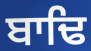
ਬਾਢਿ